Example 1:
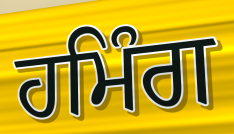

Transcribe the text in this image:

ਹਮਿੰਗ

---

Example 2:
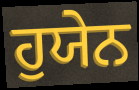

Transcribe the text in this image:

ਹੁਯੇਨ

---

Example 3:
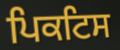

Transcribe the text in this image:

ਪਿਕਟਿਸ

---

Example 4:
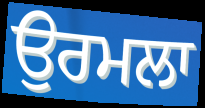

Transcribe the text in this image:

ਉਰਮਲਾ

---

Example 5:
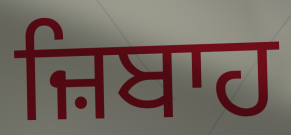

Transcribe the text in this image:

ਜ਼ਿਬਾਹ